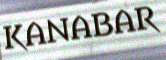
KANABAR